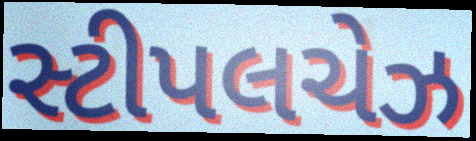
સ્ટીપલચેઝ